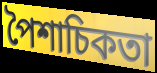
পৈশাচিকতা